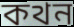
কথন